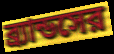
ব্র্যান্ডসের